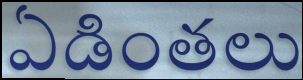
ఏడింతలు